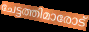
ചേട്ടത്തിമാരോട്